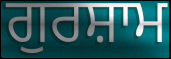
ਗੁਰਸ਼ਾਮ